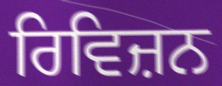
ਰਿਵਿਜ਼ਨ